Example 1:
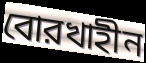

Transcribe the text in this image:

বোরখাহীন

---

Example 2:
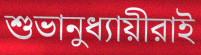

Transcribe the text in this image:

শুভানুধ্যায়ীরাই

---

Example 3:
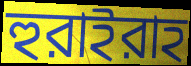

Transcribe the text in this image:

হুরাইরাহ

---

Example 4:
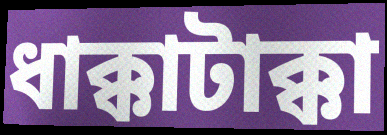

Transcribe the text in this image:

ধাক্কাটাক্কা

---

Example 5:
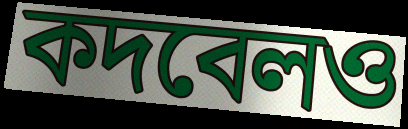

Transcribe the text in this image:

কদবেলও